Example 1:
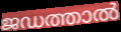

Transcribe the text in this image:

ജഡത്താൽ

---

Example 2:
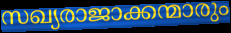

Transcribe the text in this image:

സഖ്യരാജാക്കന്മാരും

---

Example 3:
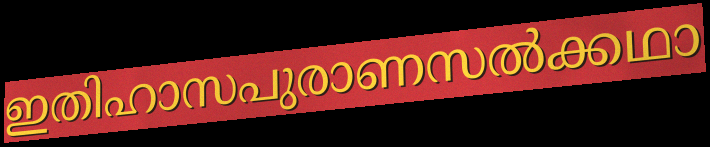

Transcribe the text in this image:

ഇതിഹാസപുരാണസൽക്കഥാ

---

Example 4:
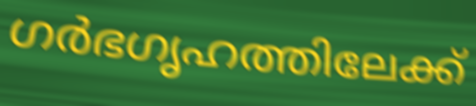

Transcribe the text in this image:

ഗർഭഗൃഹത്തിലേക്ക്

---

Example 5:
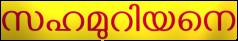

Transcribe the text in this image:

സഹമുറിയനെ